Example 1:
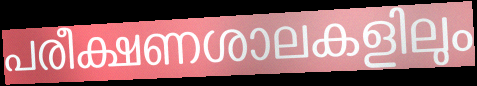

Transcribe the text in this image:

പരീക്ഷണശാലകളിലും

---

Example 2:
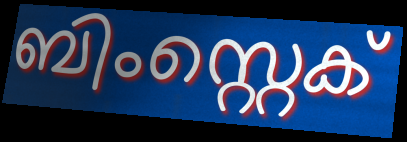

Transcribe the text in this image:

ബിംസ്റ്റെക്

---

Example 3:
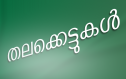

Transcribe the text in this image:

തലക്കെട്ടുകൾ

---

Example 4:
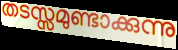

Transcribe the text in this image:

തടസ്സമുണ്ടാക്കുന്നു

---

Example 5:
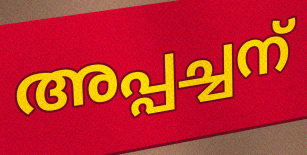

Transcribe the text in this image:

അപ്പച്ചന്